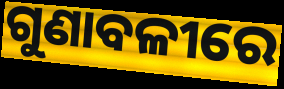
ଗୁଣାବଳୀରେ